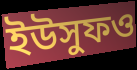
ইউসুফও